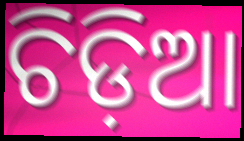
ଚିଡ଼ିଆ